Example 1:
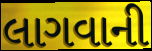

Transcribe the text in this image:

લાગવાની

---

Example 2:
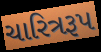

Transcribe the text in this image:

ચારિત્રરૂપ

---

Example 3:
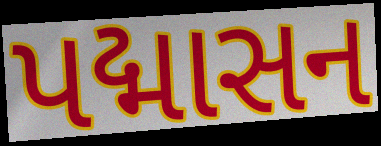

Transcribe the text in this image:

પદ્માસન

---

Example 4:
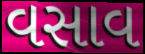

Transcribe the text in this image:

વસાવ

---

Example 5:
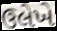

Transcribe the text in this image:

ઉલેખે